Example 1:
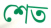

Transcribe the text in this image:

শেত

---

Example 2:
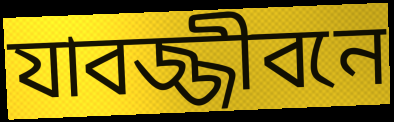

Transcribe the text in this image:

যাবজ্জীবনে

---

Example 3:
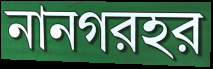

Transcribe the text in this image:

নানগরহর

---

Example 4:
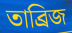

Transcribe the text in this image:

তাব্রিজ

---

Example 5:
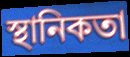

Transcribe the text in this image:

স্থানিকতা